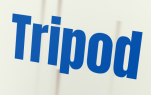
Tripod